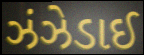
ઝંઝેડાઈ